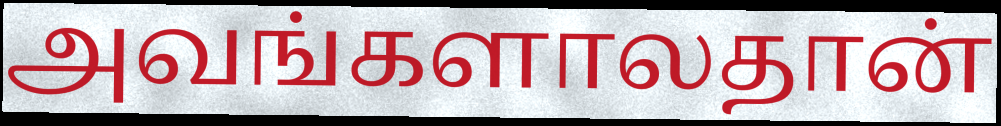
அவங்களாலதான்